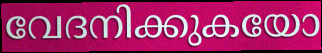
വേദനിക്കുകയോ